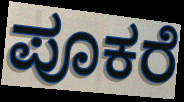
ಪೂಕರೆ